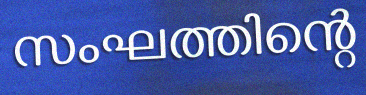
സംഘത്തിന്റെ